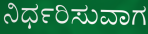
ನಿರ್ಧರಿಸುವಾಗ